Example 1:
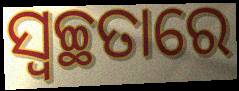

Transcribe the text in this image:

ସ୍ବଚ୍ଛତାରେ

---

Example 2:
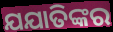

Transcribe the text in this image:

ଯଯାତିଙ୍କର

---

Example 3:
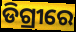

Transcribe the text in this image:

ଡିଗ୍ରୀରେ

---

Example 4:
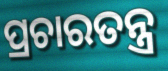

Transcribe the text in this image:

ପ୍ରଚାରତନ୍ତ୍ର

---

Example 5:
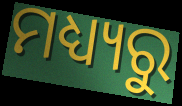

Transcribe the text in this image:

ମଧ୍ୟ୍ୟରୁ